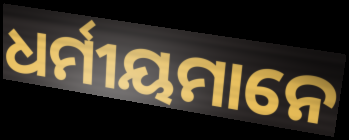
ଧର୍ମୀୟମାନେ